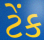
ટેંક